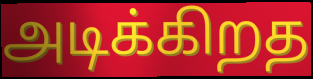
அடிக்கிறத